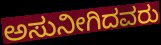
ಅಸುನೀಗಿದವರು